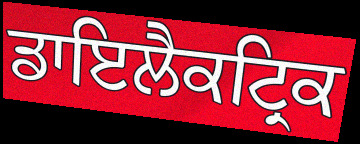
ਡਾਇਲੈਕਟ੍ਰਿਕ